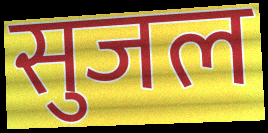
सुजल